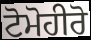
ਟੋਮੋਹੀਰੋ